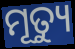
ମୂତ୍ୟୁ